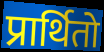
प्रार्थितो